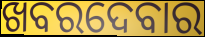
ଖବରଦେବାର